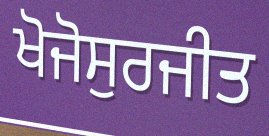
ਖੋਜੋਸੁਰਜੀਤ